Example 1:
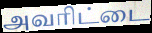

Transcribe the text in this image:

அவரிட்டை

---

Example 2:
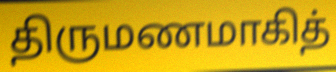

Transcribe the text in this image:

திருமணமாகித்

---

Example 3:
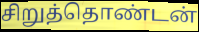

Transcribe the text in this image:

சிறுத்தொண்டன்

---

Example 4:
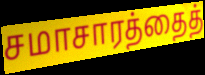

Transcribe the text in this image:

சமாசாரத்தைத்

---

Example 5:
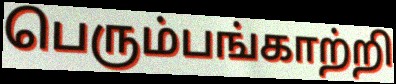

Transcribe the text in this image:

பெரும்பங்காற்றி